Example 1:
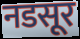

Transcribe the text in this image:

नडसूर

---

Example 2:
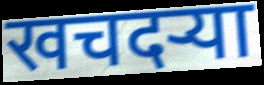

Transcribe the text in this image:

खचदऱ्या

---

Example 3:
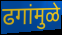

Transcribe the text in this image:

ढगांमुळे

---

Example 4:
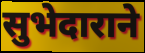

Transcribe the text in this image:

सुभेदाराने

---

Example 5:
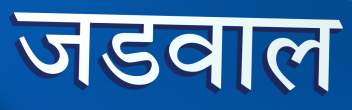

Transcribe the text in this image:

जडवाल